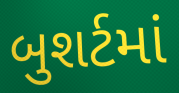
બુશર્ટમાં